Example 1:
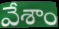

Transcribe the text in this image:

వేశాం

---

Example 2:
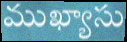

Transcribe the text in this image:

ముఖ్యాసు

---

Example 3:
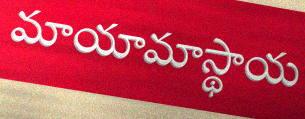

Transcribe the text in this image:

మాయామాస్థాయ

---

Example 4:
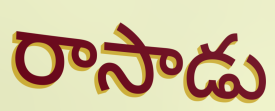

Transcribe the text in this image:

రాసాడు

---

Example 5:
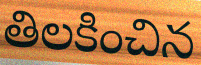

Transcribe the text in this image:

తిలకించిన